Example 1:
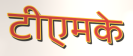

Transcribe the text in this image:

टीएमके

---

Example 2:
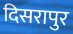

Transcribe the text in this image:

दिसरापुर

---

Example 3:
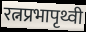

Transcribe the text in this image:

रत्नप्रभापृथ्वी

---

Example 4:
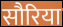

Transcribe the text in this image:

सौरिया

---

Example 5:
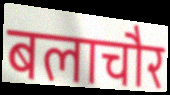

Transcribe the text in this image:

बलाचौर